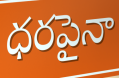
ధరపైనా